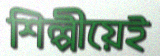
শিল্পীয়েই